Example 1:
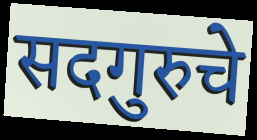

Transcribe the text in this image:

सदगुरुचे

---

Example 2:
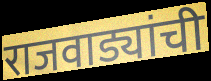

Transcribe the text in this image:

राजवाड्यांची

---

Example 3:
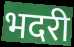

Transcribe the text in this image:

भदरी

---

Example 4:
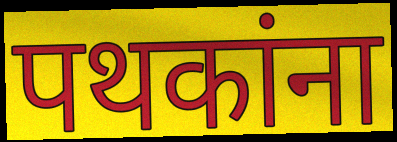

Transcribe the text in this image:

पथकांना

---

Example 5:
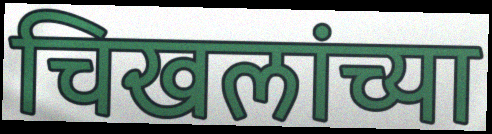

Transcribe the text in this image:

चिखलांच्या